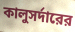
কালুসর্দারের